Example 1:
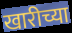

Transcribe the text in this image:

खारीच्या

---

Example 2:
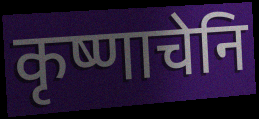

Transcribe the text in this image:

कृष्णाचेनि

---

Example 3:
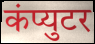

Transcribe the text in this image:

कंप्युटर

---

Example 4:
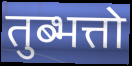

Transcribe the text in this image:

तुब्भत्तो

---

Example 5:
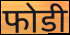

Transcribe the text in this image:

फोडी